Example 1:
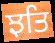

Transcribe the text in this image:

ਝਤਿ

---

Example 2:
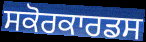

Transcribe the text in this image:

ਸਕੋਰਕਾਰਡਸ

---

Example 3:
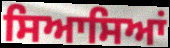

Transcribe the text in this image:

ਸਿਆਸਿਆਂ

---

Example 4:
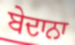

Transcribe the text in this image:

ਬੇਦਾਨਾ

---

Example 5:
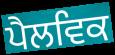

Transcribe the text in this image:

ਪੈਲਵਿਕ